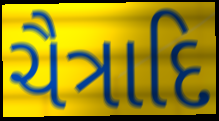
ચૈત્રાદિ